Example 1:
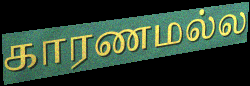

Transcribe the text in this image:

காரணமல்ல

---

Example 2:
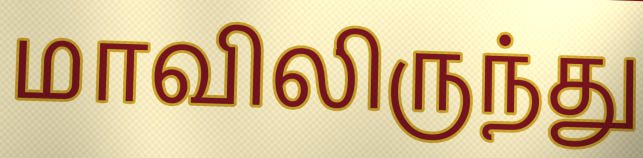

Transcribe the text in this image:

மாவிலிருந்து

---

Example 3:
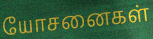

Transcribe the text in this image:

யோசனைகள்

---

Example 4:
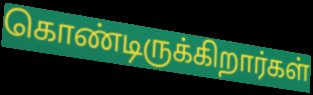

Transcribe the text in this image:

கொண்டிருக்கிறார்கள்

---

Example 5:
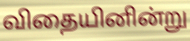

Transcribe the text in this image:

விதையினின்று